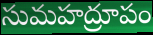
సుమహద్రూపం